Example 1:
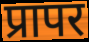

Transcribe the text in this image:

प्रापर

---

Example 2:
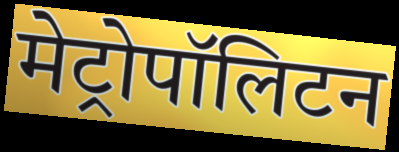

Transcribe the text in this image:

मेट्रोपॉलिटन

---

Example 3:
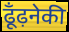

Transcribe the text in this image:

ढूँढ़नेकी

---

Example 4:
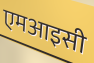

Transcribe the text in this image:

एमआइसी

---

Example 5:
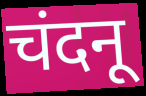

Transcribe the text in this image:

चंदनू